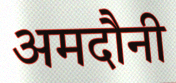
अमदौनी